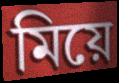
মিয়ে